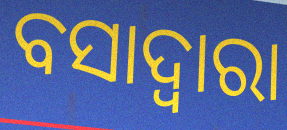
ବସାଦ୍ୱାରା